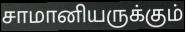
சாமானியருக்கும்